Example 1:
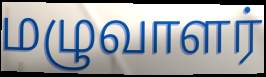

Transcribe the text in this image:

மழுவாளர்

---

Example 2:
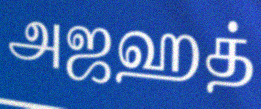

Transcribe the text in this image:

அஜஹத்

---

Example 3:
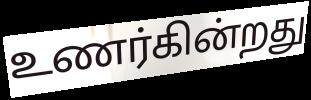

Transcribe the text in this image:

உணர்கின்றது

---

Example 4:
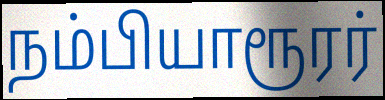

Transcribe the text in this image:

நம்பியாரூரர்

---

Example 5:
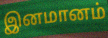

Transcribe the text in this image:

இனமானம்